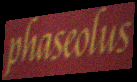
phaseolus